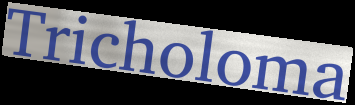
Tricholoma